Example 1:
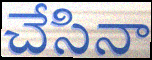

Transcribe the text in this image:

చేసినా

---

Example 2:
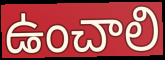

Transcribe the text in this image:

ఉంచాలి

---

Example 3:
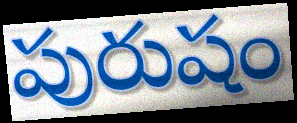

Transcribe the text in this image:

పురుషం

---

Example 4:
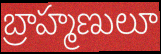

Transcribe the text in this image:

బ్రాహ్మణులూ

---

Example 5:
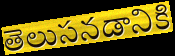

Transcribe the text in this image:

తెలుసనడానికి